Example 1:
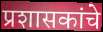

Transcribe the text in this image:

प्रशासकांचे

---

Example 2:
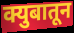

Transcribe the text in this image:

क्युबातून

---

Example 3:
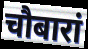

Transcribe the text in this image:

चौबारां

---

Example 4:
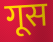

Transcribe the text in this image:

गूस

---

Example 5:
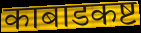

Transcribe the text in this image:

काबाडकष्ट